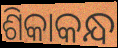
ଶିକାକନ୍ଧ